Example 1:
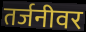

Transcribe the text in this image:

तर्जनीवर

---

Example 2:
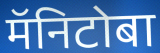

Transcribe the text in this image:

मॅनिटोबा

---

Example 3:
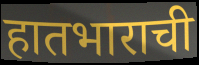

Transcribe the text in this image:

हातभाराची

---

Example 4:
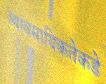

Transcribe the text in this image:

व्यावसायिकतेकडे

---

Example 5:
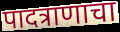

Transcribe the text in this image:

पादत्राणाचा